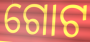
ଗୋଟ